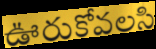
ఊరుకోవలసి